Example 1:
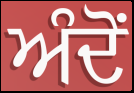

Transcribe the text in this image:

ਅੰਦੋਂ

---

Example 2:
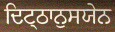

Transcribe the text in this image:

ਦਿਟ੍ਠਾਨੁਸਯੇਨ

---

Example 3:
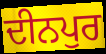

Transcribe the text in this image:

ਦੀਨਪੁਰ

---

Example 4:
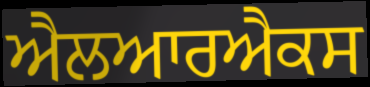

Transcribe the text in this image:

ਐਲਆਰਐਕਸ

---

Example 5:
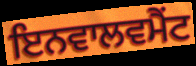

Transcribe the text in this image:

ਇਨਵਾਲਵਮੈਂਟ